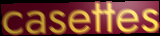
casettes